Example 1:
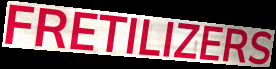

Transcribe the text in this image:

FRETILIZERS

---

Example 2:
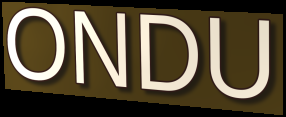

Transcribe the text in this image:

ONDU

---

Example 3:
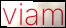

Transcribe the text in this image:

viam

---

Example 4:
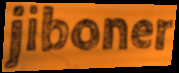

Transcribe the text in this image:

jiboner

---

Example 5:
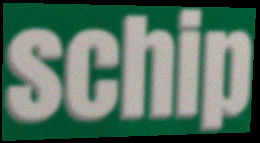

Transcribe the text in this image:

schip